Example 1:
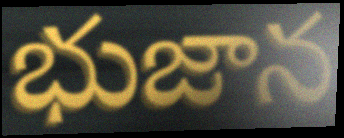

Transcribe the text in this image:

భుజాన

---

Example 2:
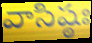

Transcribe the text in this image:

వాసిష్ఠః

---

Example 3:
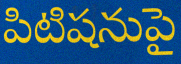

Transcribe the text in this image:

పిటిషనుపై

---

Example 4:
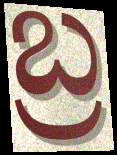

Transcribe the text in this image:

బ్ర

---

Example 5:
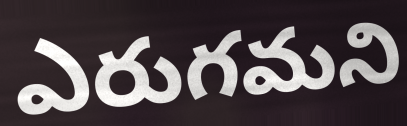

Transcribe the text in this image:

ఎరుగమని